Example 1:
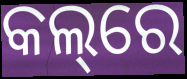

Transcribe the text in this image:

କଲ୍‌ରେ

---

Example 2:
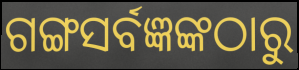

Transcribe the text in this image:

ଗଙ୍ଗସର୍ବଜ୍ଞଙ୍କଠାରୁ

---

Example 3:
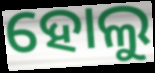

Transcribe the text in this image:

ହୋଲୁ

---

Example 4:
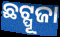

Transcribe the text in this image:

ଛଟ୍ପୂଜା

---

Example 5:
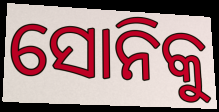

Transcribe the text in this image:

ସୋନିକୁ